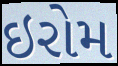
ઇરોમ